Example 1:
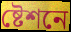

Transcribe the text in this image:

ষ্টেশনে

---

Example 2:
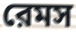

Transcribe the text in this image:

রেমস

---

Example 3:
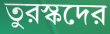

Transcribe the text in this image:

তুরস্কদের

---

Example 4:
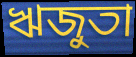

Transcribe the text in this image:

ঋজুতা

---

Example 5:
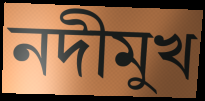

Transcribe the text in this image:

নদীমুখ